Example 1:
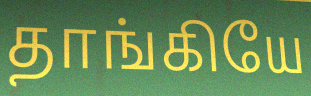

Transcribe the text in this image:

தாங்கியே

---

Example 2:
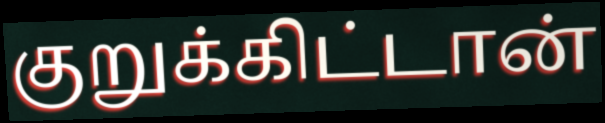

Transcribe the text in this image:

குறுக்கிட்டான்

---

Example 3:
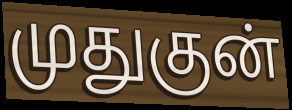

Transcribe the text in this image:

முதுகுன்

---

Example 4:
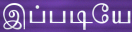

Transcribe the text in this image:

இப்படியே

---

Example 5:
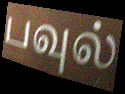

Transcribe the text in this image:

பவுல்